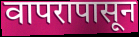
वापरापासून